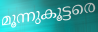
മൂന്നുകൂട്ടരെ